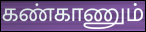
கண்காணும்